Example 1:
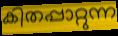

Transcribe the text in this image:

കിതപ്പാറ്റുന്ന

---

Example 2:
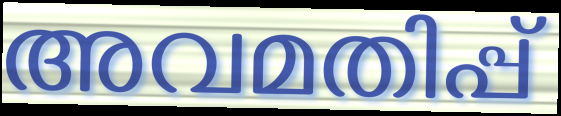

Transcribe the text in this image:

അവമതിപ്പ്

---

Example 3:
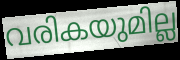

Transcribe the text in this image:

വരികയുമില്ല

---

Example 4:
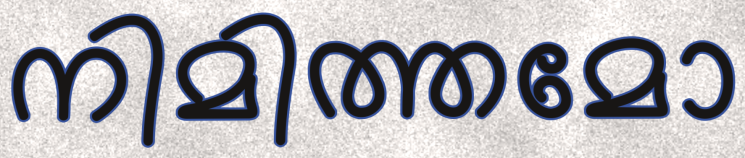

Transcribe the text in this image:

നിമിത്തമോ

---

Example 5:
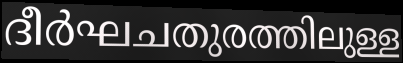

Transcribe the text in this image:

ദീർഘചതുരത്തിലുള്ള